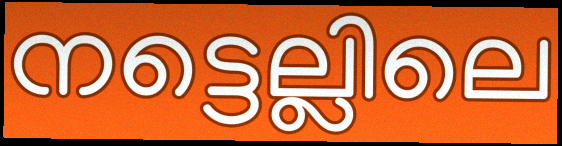
നട്ടെല്ലിലെ